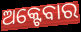
ଅକ୍ଟେବାର